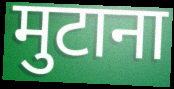
मुटाना